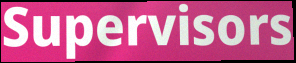
Supervisors